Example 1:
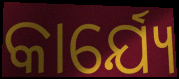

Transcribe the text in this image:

କାର୍ଯ୍ୟେ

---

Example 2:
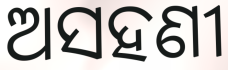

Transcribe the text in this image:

ଅସହଣୀ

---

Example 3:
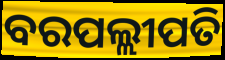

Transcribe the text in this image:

ବରପଲ୍ଲୀପତି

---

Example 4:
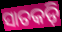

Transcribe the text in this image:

ସାତକଡ଼ି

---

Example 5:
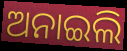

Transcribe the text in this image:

ଅନାଇଲି